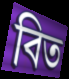
বিত